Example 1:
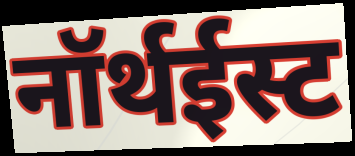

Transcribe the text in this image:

नॉर्थईस्ट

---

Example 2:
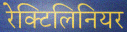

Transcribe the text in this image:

रेक्टिलिनियर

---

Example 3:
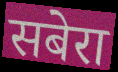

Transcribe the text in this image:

सबेरा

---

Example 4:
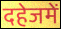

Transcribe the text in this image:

दहेजमें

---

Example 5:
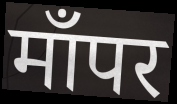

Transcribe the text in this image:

माँपर